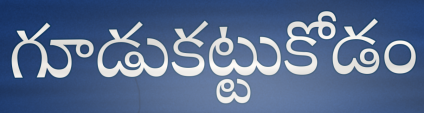
గూడుకట్టుకోడం